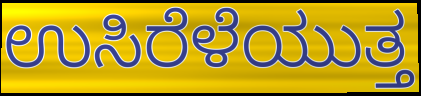
ಉಸಿರೆಳೆಯುತ್ತ